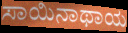
ಸಾಯಿನಾಥಾಯ